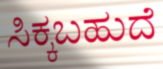
ಸಿಕ್ಕಬಹುದೆ